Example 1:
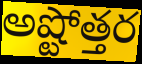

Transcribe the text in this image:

అష్టోత్తర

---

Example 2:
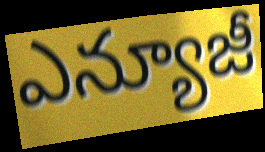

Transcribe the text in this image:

ఎన్యూజీ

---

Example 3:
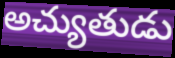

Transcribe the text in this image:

అచ్యుతుడు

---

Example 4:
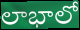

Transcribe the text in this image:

లాభాలో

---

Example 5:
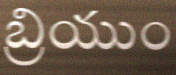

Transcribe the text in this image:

బ్రియుం